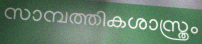
സാമ്പത്തികശാസ്ത്രം